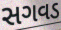
સગવડ